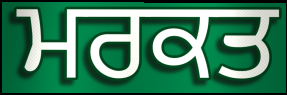
ਮਰਕਤ